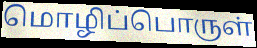
மொழிப்பொருள்